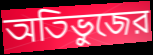
অতিভুজের